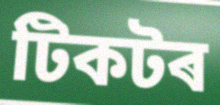
টিকটৰ